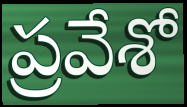
ప్రవేశో